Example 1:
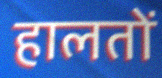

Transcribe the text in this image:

हालतों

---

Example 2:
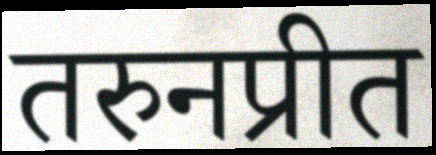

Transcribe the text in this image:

तरुनप्रीत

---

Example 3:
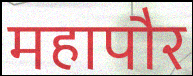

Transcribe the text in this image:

महापौर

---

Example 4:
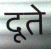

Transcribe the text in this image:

दूते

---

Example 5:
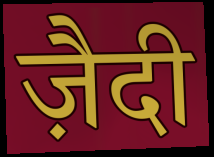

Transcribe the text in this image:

ज़ैदी